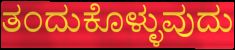
ತಂದುಕೊಳ್ಳುವುದು